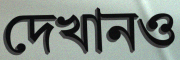
দেখানও